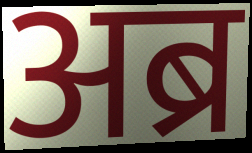
अब्र